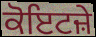
ਕੋਇਟਜ਼ੇ